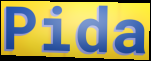
Pida